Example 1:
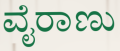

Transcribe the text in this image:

ವೈರಾಣು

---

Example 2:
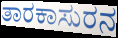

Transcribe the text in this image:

ತಾರಕಾಸುರನ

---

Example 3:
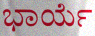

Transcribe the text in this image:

ಭಾರ್ಯೆ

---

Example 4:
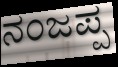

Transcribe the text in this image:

ನಂಜಪ್ಪ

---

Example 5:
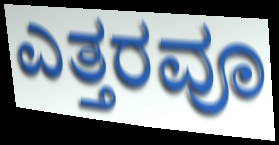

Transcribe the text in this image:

ಎತ್ತರವೂ